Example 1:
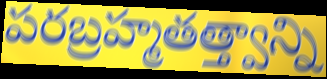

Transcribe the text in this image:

పరబ్రహ్మతత్త్వాన్ని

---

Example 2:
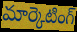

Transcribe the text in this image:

మార్కెటింగ్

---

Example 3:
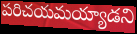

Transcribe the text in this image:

పరిచయమయ్యాడని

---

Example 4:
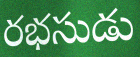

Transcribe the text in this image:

రభసుడు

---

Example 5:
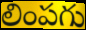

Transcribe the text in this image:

లింపగు